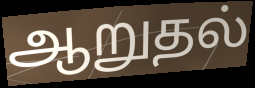
ஆறுதல்